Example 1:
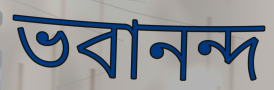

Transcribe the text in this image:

ভবানন্দ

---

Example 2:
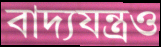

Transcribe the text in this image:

বাদ্যযন্ত্রও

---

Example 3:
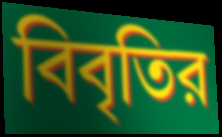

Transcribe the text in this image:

বিবৃতির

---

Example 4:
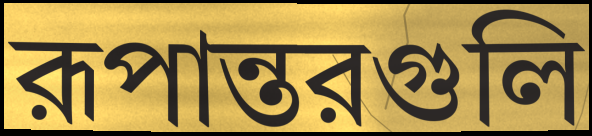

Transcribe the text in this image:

রূপান্তরগুলি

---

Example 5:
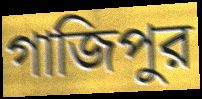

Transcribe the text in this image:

গাজিপুর